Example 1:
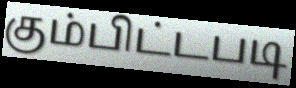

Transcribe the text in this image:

கும்பிட்டபடி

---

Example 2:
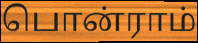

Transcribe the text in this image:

பொன்ராம்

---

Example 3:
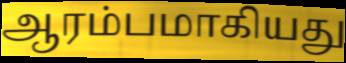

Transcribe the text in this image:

ஆரம்பமாகியது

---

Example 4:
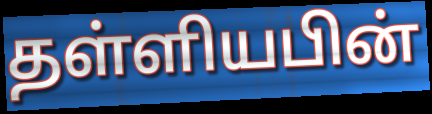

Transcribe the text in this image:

தள்ளியபின்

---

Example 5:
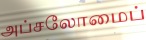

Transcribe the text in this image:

அப்சலோமைப்